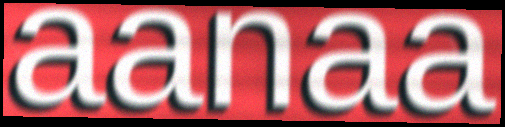
aanaa